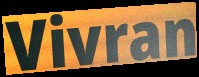
Vivran